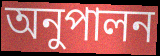
অনুপালন